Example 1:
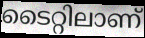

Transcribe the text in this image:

ടൈറ്റിലാണ്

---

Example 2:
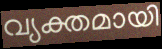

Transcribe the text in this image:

വ്യക്തമായി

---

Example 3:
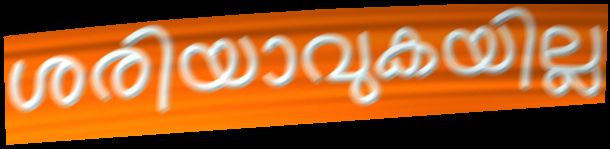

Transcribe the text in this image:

ശരിയാവുകയില്ല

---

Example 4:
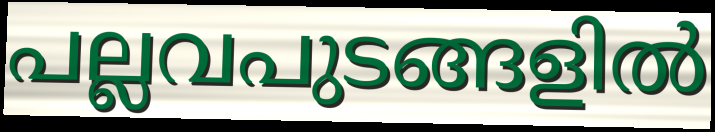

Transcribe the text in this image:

പല്ലവപുടങ്ങളിൽ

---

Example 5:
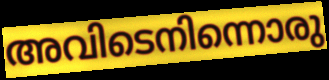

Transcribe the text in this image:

അവിടെനിന്നൊരു